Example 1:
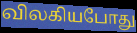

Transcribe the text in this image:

விலகியபோது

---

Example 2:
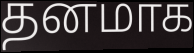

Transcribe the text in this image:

தனமாக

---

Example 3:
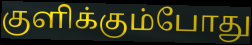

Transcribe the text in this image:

குளிக்கும்போது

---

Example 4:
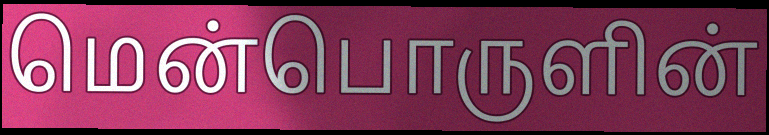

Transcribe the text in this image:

மென்பொருளின்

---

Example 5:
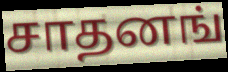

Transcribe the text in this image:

சாதனங்